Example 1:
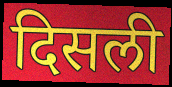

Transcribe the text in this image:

दिसली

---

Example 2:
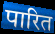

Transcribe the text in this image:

पारित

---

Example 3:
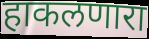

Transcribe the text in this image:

हाकलणारा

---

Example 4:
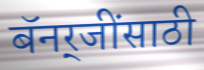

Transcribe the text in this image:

बॅनर्जींसाठी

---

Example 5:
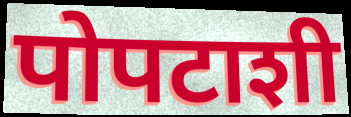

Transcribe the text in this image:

पोपटाशी